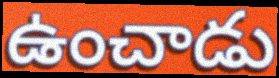
ఉంచాడు